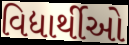
વિદ્યાર્થીઓ